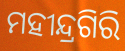
ମହୀନ୍ଦ୍ରଗିରି